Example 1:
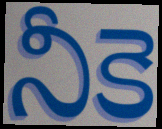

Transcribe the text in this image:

నీకె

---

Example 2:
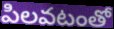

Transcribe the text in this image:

పిలవటంతో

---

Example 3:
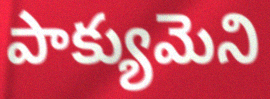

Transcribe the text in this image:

పాక్యుమెని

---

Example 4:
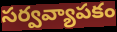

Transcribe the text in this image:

సర్వవ్యాపకం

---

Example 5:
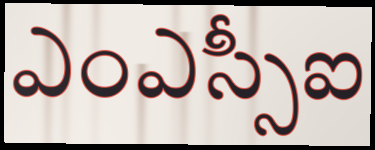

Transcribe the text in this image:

ఎంఎస్సీఐ